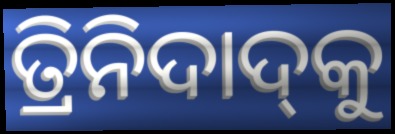
ତ୍ରିନିଦାଦ୍‍କୁ